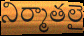
నిర్మాతలై